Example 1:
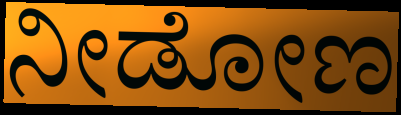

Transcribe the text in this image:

ನೀಡೋಣ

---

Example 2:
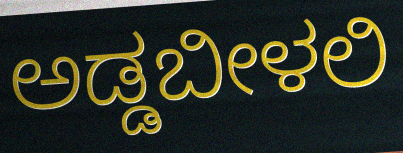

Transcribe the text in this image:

ಅಡ್ಡಬೀಳಲಿ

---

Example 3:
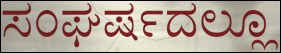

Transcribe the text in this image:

ಸಂಘರ್ಷದಲ್ಲೂ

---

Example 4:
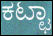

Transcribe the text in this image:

ಕಟ್ಟಾ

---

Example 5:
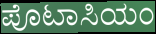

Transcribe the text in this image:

ಪೊಟಾಸಿಯಂ